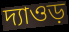
দ্যাওড়